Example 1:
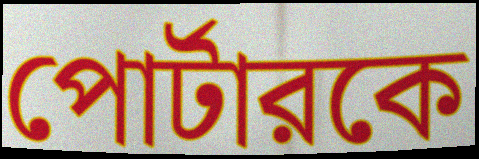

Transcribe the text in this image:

পোর্টারকে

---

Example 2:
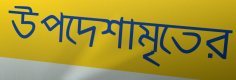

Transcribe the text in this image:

উপদেশামৃতের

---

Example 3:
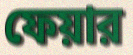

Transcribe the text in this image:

ফেয়ার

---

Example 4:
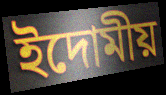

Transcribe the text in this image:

ইদোমীয়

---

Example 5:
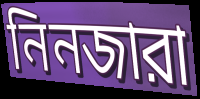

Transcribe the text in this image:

নিনজারা